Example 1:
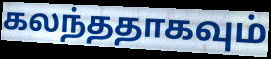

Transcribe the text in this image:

கலந்ததாகவும்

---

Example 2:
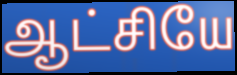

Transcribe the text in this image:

ஆட்சியே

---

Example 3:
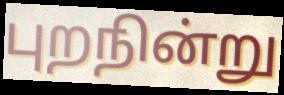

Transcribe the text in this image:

புறநின்று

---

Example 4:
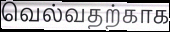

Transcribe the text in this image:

வெல்வதற்காக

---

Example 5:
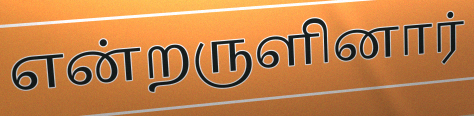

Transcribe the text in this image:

என்றருளினார்